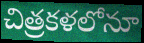
చిత్రకళలోనూ